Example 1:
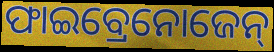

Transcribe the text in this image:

ଫାଇବ୍ରେନୋଜେନ୍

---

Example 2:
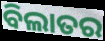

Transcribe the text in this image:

ବିଲାତର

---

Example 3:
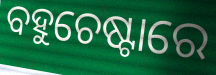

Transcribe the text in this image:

ବହୁଚେଷ୍ଟାରେ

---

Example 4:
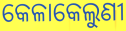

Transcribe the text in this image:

କେଳାକେଲୁଣୀ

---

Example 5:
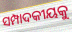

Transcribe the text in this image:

ସମ୍ପାଦକୀୟକୁ